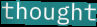
thought